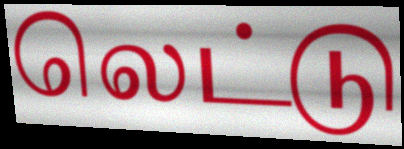
லெட்டு